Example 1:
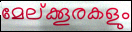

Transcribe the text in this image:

മേല്ക്കൂരകളും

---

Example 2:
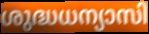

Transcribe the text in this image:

ശുദ്ധധന്യാസി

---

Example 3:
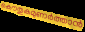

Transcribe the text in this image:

കൌതുകമുണർത്താൻ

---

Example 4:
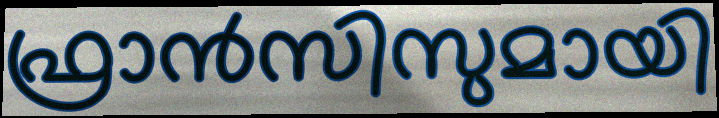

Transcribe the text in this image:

ഫ്രാൻസിസുമായി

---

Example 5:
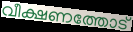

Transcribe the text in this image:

വീക്ഷണത്തോട്